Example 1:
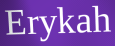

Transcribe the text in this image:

Erykah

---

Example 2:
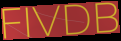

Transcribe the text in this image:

FIVDB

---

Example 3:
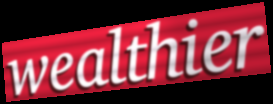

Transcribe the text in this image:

wealthier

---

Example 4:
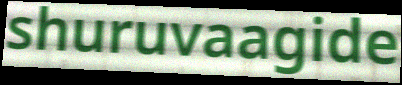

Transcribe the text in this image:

shuruvaagide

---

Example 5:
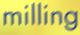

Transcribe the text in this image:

milling